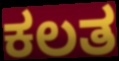
ಕಲತ